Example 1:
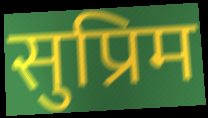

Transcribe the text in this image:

सुप्रिम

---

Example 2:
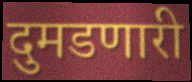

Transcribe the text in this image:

दुमडणारी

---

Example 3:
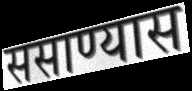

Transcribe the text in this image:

ससाण्यास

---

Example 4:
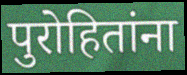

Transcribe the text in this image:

पुरोहितांना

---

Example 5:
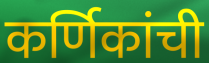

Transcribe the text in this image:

कर्णिकांची